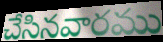
చేసినవారము